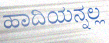
ಹಾದಿಯನ್ನಲ್ಲ